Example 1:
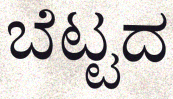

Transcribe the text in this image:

ಬೆಟ್ಟದ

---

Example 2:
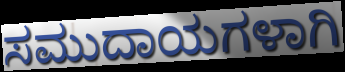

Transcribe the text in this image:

ಸಮುದಾಯಗಳಾಗಿ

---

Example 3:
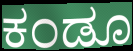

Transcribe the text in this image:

ಕಂಡೂ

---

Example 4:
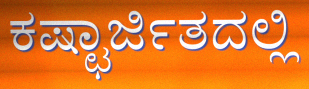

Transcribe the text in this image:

ಕಷ್ಟಾರ್ಜಿತದಲ್ಲಿ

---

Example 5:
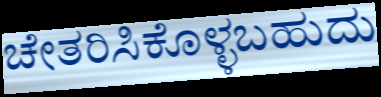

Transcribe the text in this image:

ಚೇತರಿಸಿಕೊಳ್ಳಬಹುದು